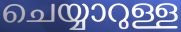
ചെയ്യാറുള്ള